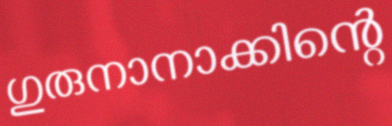
ഗുരുനാനാക്കിന്റെ